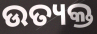
ଉତ୍ୟକ୍ତ